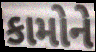
કામોને